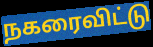
நகரைவிட்டு